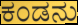
ಕಂಡನು